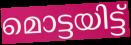
മൊട്ടയിട്ട്